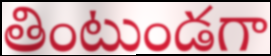
తింటుండగా